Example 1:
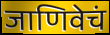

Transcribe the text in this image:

जाणिवेचं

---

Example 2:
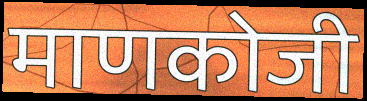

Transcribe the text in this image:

माणकोजी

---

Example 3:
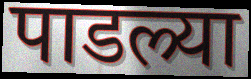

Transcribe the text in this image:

पाडल्या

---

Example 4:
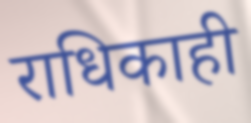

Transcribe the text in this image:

राधिकाही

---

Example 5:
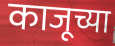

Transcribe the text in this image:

काजूच्या